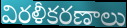
విరళీకరణాలు